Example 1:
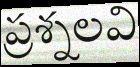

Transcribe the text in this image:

ప్రశ్నలవి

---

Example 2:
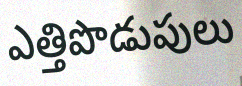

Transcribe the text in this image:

ఎత్తిపొడుపులు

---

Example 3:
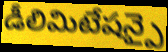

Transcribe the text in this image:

డీలిమిటేషన్పై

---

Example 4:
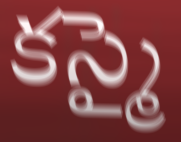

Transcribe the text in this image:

కస్మై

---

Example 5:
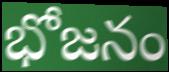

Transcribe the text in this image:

భోజనం